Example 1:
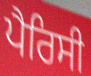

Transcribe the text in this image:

ਪੈਰਿਸੀ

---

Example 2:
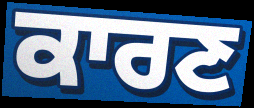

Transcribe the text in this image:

ਕਾਰਣ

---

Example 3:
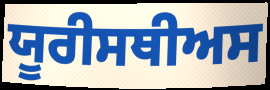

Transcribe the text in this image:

ਯੂਰੀਸਥੀਅਸ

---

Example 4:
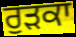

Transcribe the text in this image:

ਰੁੜਕਾ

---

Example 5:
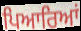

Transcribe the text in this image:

ਪਿਆਰਿਆਂ